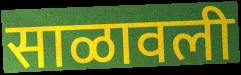
साळावली